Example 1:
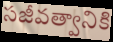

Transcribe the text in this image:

సజీవత్వానికి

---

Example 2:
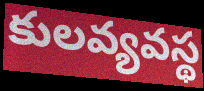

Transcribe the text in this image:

కులవ్యవస్థ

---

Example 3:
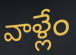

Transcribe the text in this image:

వాళ్లేం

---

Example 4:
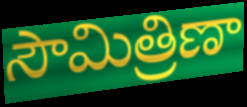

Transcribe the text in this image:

సౌమిత్రిణా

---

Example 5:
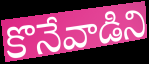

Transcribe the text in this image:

కొనేవాడిని